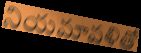
నియమావళితో